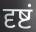
दृष्टं